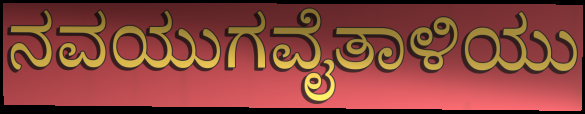
ನವಯುಗವೈತಾಳಿಯು